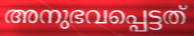
അനുഭവപ്പെട്ടത്